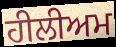
ਹੀਲੀਅਮ